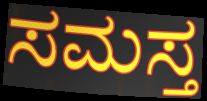
ಸಮಸ್ತ